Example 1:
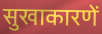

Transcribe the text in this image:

सुखाकारणें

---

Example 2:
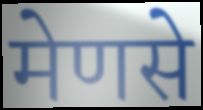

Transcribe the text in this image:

मेणसे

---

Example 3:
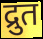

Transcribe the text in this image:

द्रुत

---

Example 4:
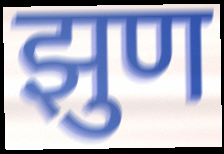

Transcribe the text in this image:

झुण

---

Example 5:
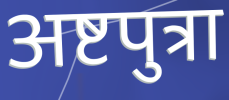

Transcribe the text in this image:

अष्टपुत्रा